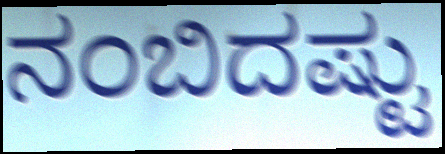
ನಂಬಿದಷ್ಟು